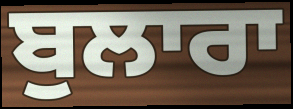
ਬੁਲਾਰਾ